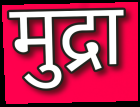
मुद्रा